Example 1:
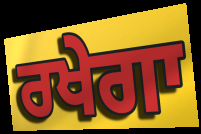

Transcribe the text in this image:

ਰਖੇਗਾ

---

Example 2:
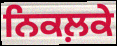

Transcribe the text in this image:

ਨਿਕਲ਼ਕੇ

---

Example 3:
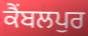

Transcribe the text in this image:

ਕੈਂਬਲਪੁਰ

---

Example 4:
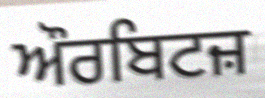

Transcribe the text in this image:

ਔਰਬਿਟਜ਼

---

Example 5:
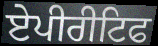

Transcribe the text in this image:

ਏਪੀਰੀਟਿਫ